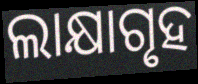
ଲାକ୍ଷାଗୃହ